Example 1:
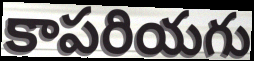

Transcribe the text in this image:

కాపరియగు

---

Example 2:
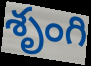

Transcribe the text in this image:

శృంగి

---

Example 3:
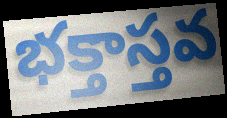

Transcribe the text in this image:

భక్తాస్తవ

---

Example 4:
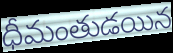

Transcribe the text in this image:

ధీమంతుడయిన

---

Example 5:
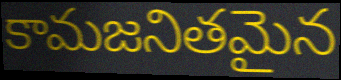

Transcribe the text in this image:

కామజనితమైన